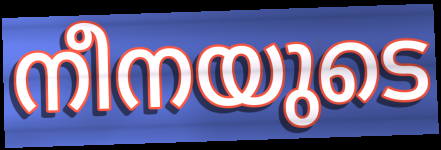
നീനയുടെ